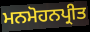
ਮਨਮੋਹਨਪ੍ਰੀਤ